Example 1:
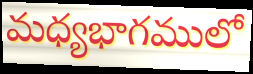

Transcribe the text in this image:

మధ్యభాగములో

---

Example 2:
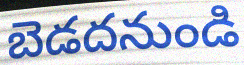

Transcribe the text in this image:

బెడదనుండి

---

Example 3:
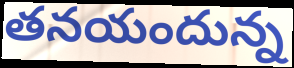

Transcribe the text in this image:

తనయందున్న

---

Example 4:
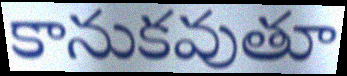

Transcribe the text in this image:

కానుకవుతూ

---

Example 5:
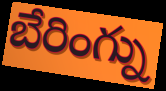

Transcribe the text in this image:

బేరింగ్ను